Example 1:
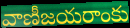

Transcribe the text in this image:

వాణీజయరాంకు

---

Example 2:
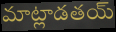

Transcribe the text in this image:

మాట్లాడతయ్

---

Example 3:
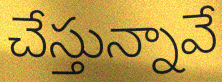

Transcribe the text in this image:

చేస్తున్నావే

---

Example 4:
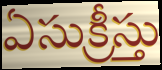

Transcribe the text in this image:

ఏసుక్రీస్తు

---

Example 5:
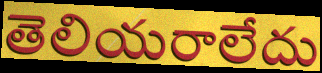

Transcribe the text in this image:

తెలియరాలేదు